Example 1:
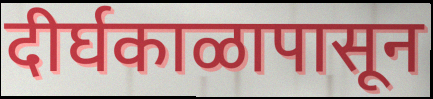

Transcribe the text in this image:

दीर्घकाळापासून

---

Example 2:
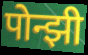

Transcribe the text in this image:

पोन्झी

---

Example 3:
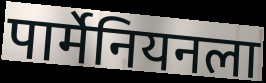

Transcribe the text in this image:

पार्मेनियनला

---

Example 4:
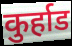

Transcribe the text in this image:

कुर्हाड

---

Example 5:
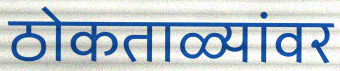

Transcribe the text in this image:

ठोकताळ्यांवर